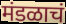
मंडळाचं